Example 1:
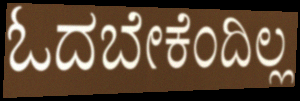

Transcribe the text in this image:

ಓದಬೇಕೆಂದಿಲ್ಲ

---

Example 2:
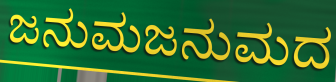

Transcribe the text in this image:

ಜನುಮಜನುಮದ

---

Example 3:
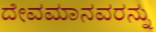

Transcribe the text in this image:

ದೇವಮಾನವರನ್ನು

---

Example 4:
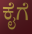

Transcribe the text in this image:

ಕೈಗೆ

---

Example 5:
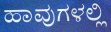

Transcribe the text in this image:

ಹಾವುಗಳಲ್ಲಿ